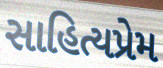
સાહિત્યપ્રેમ